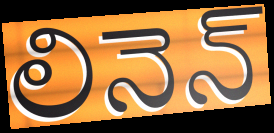
లినెన్